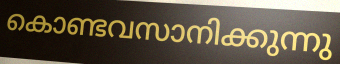
കൊണ്ടവസാനിക്കുന്നു